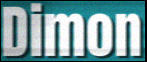
Dimon